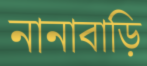
নানাবাড়ি